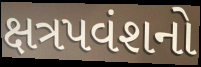
ક્ષત્રપવંશનો